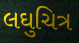
લઘુચિત્ર